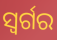
ସ୍ୱର୍ଗର